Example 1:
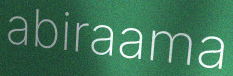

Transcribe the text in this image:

abiraama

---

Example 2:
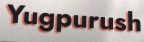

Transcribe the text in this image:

Yugpurush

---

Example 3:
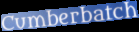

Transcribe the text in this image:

Cumberbatch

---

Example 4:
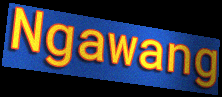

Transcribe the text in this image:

Ngawang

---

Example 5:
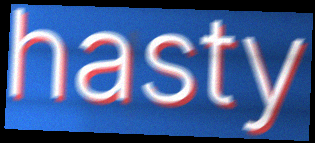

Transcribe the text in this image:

hasty